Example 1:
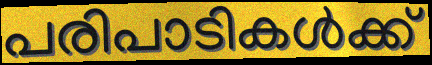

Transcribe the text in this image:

പരിപാടികൾക്ക്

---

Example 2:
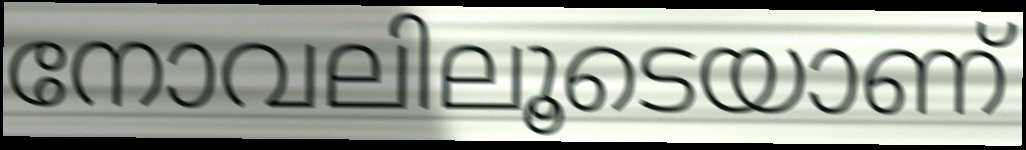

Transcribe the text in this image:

നോവലിലൂടെയാണ്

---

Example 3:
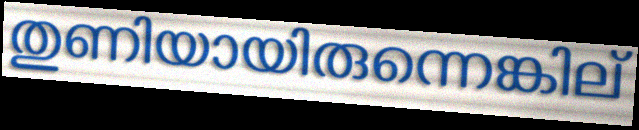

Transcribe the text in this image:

തുണിയായിരുന്നെങ്കില്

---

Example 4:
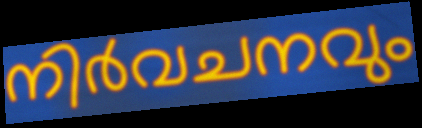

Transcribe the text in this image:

നിർവചനവും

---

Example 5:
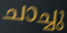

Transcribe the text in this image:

ചാച്ചു